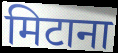
मिटाना